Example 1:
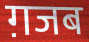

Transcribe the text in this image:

ग़जब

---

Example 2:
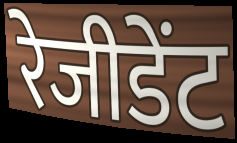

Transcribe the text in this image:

रेजीडेंट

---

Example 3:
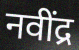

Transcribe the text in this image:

नवींद्र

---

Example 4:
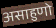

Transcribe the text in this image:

असाहुणो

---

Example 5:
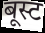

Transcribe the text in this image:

बूस्ट